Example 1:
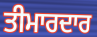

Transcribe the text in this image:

ਤੀਮਾਰਦਾਰ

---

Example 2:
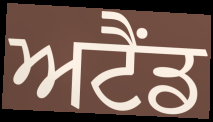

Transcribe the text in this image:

ਅਟੈਂਡ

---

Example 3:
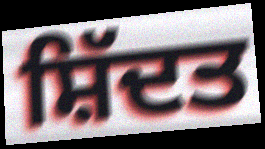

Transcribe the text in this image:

ਸ਼ਿੱਦਤ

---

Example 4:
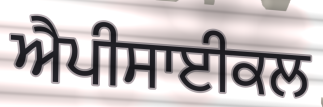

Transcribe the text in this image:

ਐਪੀਸਾਈਕਲ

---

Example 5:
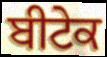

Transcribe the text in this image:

ਬੀਟੇਕ